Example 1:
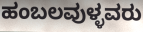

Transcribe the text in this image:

ಹಂಬಲವುಳ್ಳವರು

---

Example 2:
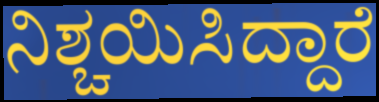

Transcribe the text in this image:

ನಿಶ್ಚಯಿಸಿದ್ದಾರೆ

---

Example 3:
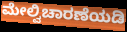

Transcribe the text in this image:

ಮೇಲ್ವಿಚಾರಣೆಯಡಿ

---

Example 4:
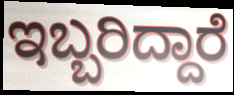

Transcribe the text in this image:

ಇಬ್ಬರಿದ್ದಾರೆ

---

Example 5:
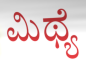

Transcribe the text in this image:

ಮಿಥ್ಯೆ